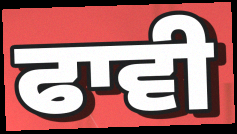
ਫਾਵੀ